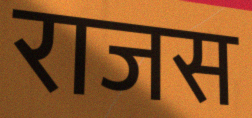
राजस